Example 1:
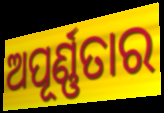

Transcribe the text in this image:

ଅପୂର୍ଣ୍ଣତାର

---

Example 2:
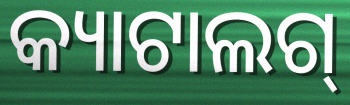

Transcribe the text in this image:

କ୍ୟାଟାଲଗ୍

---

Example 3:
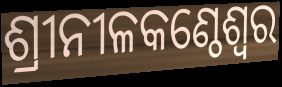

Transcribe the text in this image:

ଶ୍ରୀନୀଳକଣ୍ଠେଶ୍ଵର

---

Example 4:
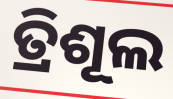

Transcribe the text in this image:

ତ୍ରିଶୂଲ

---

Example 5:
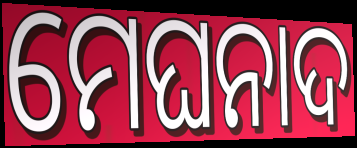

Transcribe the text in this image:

ମେଘନାଦ